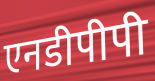
एनडीपीपी